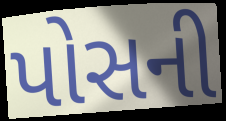
પોસની